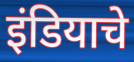
इंडियाचे